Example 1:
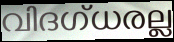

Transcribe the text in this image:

വിദഗ്ധരല്ല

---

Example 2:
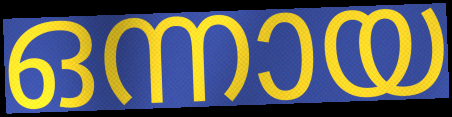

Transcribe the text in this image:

ഒന്നായ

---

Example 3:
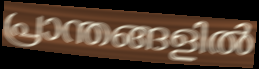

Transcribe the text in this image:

പ്രാന്തങ്ങളിൽ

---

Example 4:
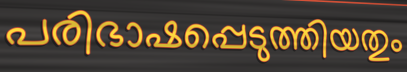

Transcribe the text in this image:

പരിഭാഷപ്പെടുത്തിയതും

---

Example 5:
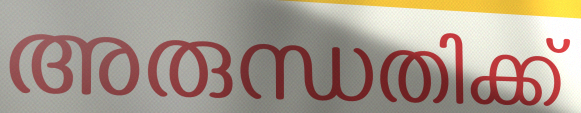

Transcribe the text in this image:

അരുന്ധതിക്ക്